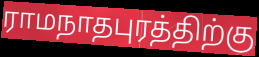
ராமநாதபுரத்திற்கு